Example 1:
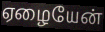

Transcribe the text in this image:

ஏழையேன்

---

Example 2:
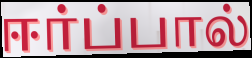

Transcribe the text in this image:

ஈர்ப்பால்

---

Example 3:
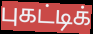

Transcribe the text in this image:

புகட்டிக்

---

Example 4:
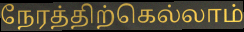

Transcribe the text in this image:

நேரத்திற்கெல்லாம்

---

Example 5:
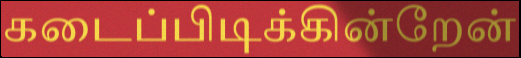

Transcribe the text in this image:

கடைப்பிடிக்கின்றேன்